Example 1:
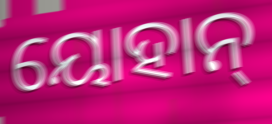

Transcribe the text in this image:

ୟୋହାନ୍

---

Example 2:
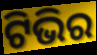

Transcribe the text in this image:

ଟିଭିର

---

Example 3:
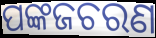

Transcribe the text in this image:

ପଙ୍କଜଚରଣ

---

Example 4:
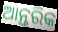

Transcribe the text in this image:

ଆନ୍ତରିକ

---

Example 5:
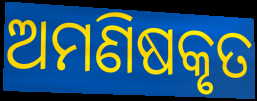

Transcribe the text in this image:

ଅମଣିଷକୃତ